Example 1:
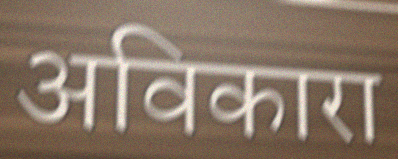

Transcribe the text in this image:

अविकारा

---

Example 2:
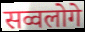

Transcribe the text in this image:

सव्वलोगे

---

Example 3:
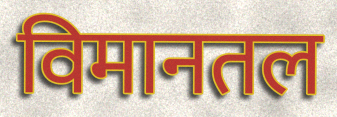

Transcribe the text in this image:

विमानतल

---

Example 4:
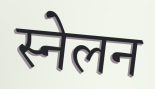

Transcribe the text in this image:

स्नेलन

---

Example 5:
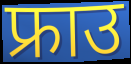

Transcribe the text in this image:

फ्राउ